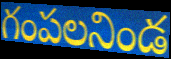
గంపలనిండ